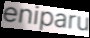
eniparu